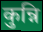
कुन्नि